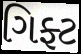
ગિફ્ટ